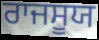
ਰਾਜਸੂਯ